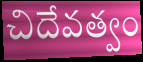
చిదేవత్వం